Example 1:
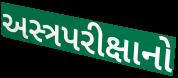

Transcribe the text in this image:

અસ્ત્રપરીક્ષાનો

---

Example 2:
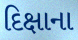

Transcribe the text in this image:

દિક્ષાના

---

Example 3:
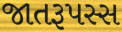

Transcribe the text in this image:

જાતરૂપસ્સ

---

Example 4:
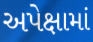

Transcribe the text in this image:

અપેક્ષામાં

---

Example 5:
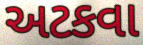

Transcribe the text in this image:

અટકવા